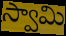
స్వామి